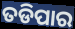
ତଡିପାର